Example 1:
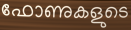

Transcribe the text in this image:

ഫോണുകളുടെ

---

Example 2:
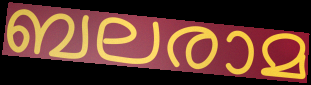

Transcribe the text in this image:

ബലരാമ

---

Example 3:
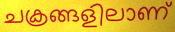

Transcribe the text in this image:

ചക്രങ്ങളിലാണ്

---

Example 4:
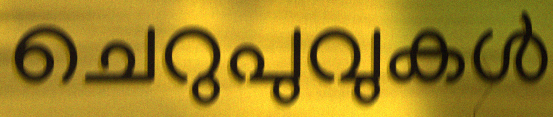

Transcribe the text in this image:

ചെറുപുവുകൾ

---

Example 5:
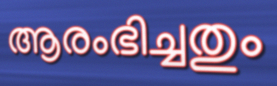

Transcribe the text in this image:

ആരംഭിച്ചതും